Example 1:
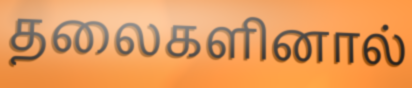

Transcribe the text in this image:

தலைகளினால்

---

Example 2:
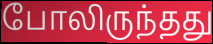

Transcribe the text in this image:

போலிருந்தது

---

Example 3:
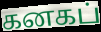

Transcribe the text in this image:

கனகப்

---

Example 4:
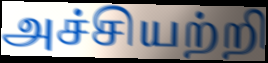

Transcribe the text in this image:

அச்சியற்றி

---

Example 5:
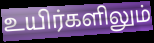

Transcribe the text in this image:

உயிர்களிலும்